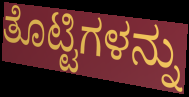
ತೊಟ್ಟಿಗಳನ್ನು